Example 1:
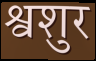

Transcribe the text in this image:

श्वशुर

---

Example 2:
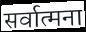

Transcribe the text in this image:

सर्वात्मना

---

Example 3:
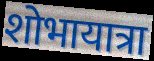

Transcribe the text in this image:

शोभायात्रा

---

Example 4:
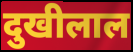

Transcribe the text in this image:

दुखीलाल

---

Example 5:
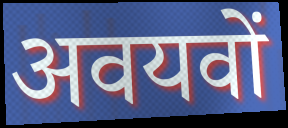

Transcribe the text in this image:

अवयवों